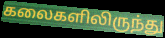
கலைகளிலிருந்து